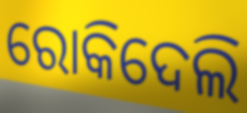
ରୋକିଦେଲି